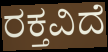
ರಕ್ತವಿದೆ